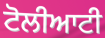
ਟੋਲੀਆਟੀ